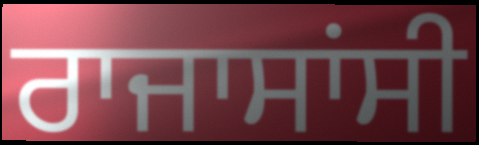
ਰਾਜਾਸਾਂਸੀ